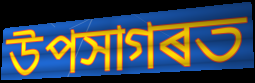
উপসাগৰত